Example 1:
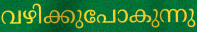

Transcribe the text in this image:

വഴിക്കുപോകുന്നു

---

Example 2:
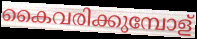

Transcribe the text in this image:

കൈവരിക്കുമ്പോള്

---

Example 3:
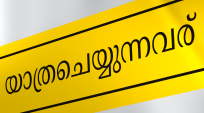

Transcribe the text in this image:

യാത്രചെയ്യുന്നവര്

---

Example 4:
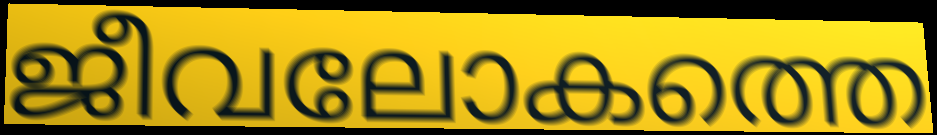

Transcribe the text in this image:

ജീവലോകത്തെ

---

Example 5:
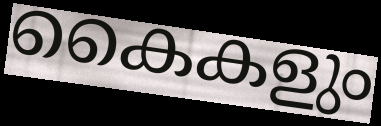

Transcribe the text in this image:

കൈകളും